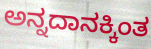
ಅನ್ನದಾನಕ್ಕಿಂತ